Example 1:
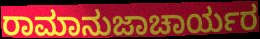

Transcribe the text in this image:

ರಾಮಾನುಜಾಚಾರ್ಯರ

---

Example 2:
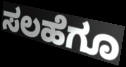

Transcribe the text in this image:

ಸಲಹೆಗೂ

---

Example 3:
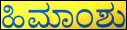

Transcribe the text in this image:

ಹಿಮಾಂಶು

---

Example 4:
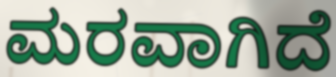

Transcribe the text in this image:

ಮರವಾಗಿದೆ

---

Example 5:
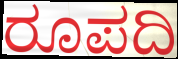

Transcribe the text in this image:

ರೂಪದಿ